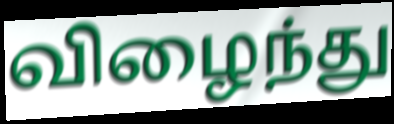
விழைந்து